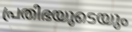
പ്രതിഭയുടെയും